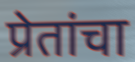
प्रेतांचा